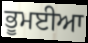
ਭੂਮਈਆ